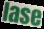
lase